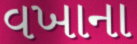
વખાના